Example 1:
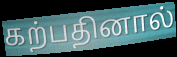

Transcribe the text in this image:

கற்பதினால்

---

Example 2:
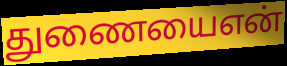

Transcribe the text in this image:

துணையைஎன்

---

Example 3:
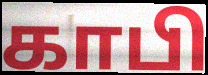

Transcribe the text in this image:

காபி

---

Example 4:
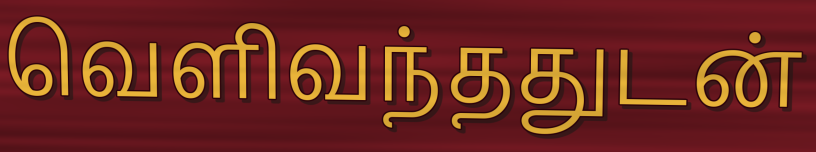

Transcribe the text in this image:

வெளிவந்ததுடன்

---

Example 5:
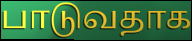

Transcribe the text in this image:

பாடுவதாக